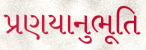
પ્રણયાનુભૂતિ